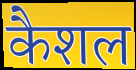
कैशल